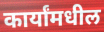
कार्यांमधील